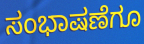
ಸಂಭಾಷಣೆಗೂ